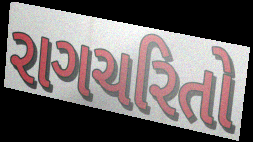
રાગચરિતો